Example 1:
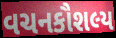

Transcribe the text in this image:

વચનકૌશલ્ય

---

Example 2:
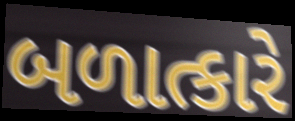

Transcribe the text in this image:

બળાત્કારે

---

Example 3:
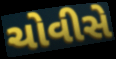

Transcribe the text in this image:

ચોવીસે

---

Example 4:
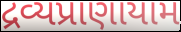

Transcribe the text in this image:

દ્રવ્યપ્રાણાયામ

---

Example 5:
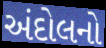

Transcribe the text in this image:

અંદોલનો